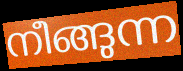
നീങ്ങുന്ന